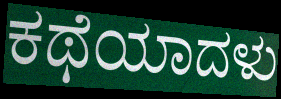
ಕಥೆಯಾದಳು